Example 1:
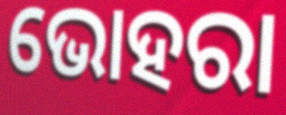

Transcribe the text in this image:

ଭୋହରା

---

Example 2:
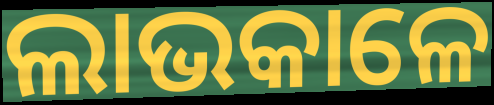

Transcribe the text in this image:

ଲାଭକାଳେ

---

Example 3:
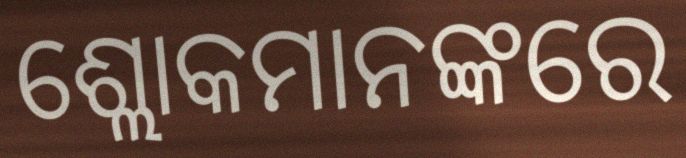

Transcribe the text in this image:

ଶ୍ଲୋକମାନଙ୍କରେ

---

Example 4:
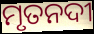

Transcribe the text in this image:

ମୃତନଦୀ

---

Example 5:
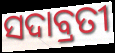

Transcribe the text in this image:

ସଦାବ୍ରତୀ